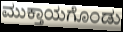
ಮುಕ್ತಾಯಗೊಂಡು